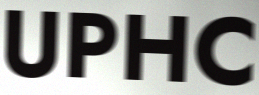
UPHC